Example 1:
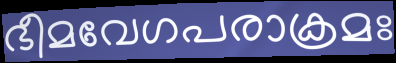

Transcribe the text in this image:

ഭീമവേഗപരാക്രമഃ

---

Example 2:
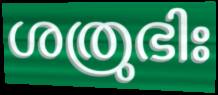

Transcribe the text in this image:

ശത്രുഭിഃ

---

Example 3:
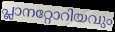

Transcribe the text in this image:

പ്ലാനറ്റോറിയവും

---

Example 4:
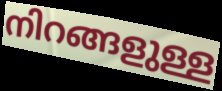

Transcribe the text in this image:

നിറങ്ങളുള്ള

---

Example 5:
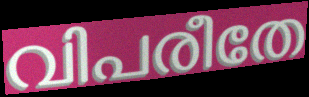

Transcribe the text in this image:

വിപരീതേ